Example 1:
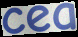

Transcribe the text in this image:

cea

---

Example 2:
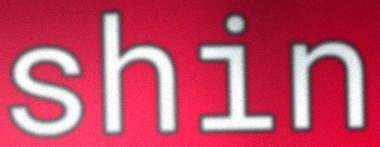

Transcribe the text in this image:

shin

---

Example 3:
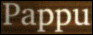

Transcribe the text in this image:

Pappu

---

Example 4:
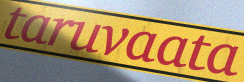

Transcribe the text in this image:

taruvaata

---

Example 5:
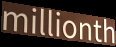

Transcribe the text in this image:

millionth